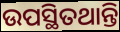
ଉପସ୍ଥିତଥାନ୍ତି